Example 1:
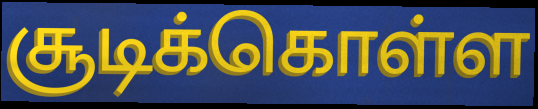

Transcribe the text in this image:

சூடிக்கொள்ள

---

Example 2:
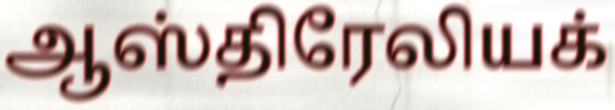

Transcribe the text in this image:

ஆஸ்திரேலியக்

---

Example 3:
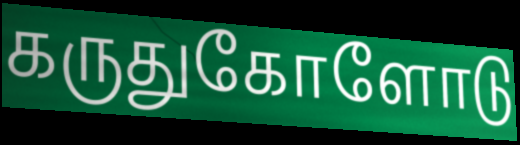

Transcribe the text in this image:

கருதுகோளோடு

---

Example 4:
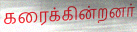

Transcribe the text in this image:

கரைக்கின்றனர்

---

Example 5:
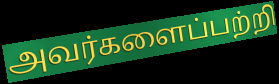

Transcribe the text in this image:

அவர்களைப்பற்றி